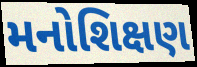
મનોશિક્ષણ